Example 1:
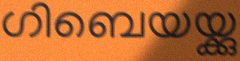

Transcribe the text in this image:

ഗിബെയയ്ക്കു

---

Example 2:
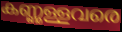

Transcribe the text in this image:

കണ്ണുള്ളവരെ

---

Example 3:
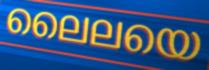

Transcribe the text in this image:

ലൈലയെ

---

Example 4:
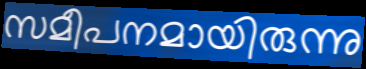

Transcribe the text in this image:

സമീപനമായിരുന്നു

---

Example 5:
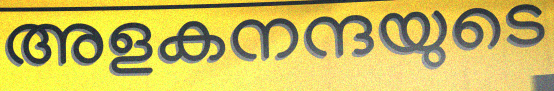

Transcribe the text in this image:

അളകനന്ദയുടെ